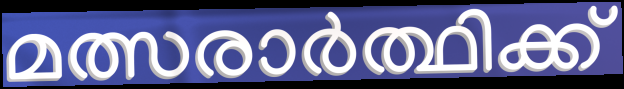
മത്സരാർത്ഥിക്ക്